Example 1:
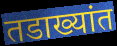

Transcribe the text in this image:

तडाख्यांत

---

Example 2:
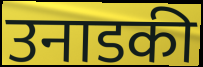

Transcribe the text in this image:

उनाडकी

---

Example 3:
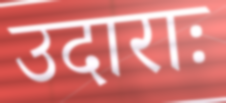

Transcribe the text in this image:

उदाराः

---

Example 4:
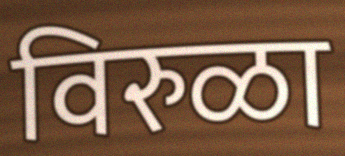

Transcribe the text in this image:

विरुळा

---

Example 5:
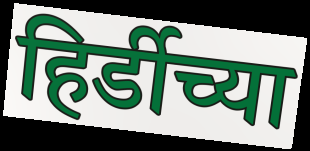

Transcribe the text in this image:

हिर्डीच्या